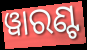
ୱାରଣ୍ଟ